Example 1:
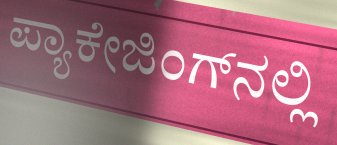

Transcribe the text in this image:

ಪ್ಯಾಕೇಜಿಂಗ್‌ನಲ್ಲಿ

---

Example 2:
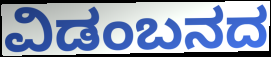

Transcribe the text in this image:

ವಿಡಂಬನದ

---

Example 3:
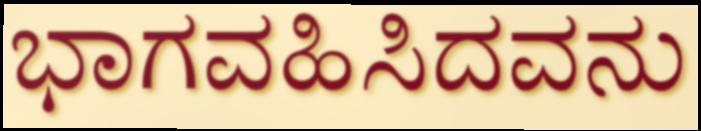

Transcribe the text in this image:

ಭಾಗವಹಿಸಿದವನು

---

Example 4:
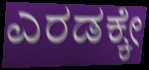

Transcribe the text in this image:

ಎರಡಕ್ಕೇ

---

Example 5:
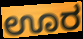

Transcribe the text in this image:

ಊರ